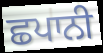
ਛਪਾਨੀ